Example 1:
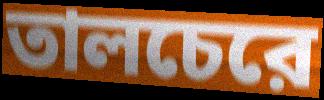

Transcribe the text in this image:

তালচেরে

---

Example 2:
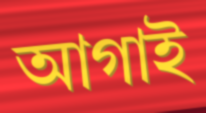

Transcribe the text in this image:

আগাই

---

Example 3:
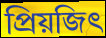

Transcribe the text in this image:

প্রিয়জিৎ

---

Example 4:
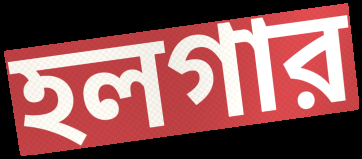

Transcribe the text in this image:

হলগার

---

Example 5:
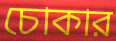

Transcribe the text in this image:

চোকার